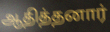
ஆதித்தனார்